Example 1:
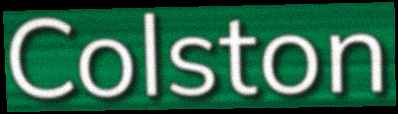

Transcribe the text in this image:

Colston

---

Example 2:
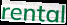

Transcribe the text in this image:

rental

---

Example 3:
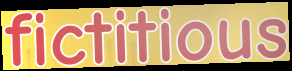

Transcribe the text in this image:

fictitious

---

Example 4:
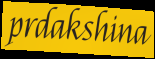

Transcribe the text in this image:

prdakshina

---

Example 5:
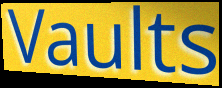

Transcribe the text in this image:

Vaults